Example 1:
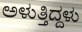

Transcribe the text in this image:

ಅಳುತ್ತಿದ್ದಳು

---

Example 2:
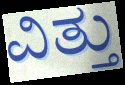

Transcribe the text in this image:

ವಿತ್ತು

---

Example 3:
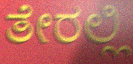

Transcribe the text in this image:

ತೇರಲ್ಲಿ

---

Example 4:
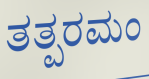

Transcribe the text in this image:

ತತ್ಪರಮಂ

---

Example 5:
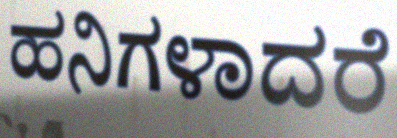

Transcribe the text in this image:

ಹನಿಗಳಾದರೆ